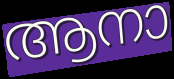
ആനാ